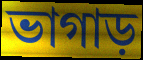
ভাগাড়